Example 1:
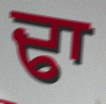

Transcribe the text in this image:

ਢਾ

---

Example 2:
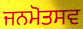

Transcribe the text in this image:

ਜਨਮੋਤਸਵ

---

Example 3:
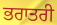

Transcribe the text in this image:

ਭਰਾਤਰੀ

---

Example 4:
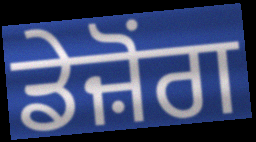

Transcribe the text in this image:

ਡੇਜ਼ੋਂਗ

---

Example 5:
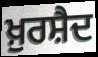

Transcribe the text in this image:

ਖ਼ੁਰਸ਼ੈਦ